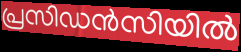
പ്രസിഡൻസിയിൽ